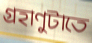
গ্রহাণুটাতে